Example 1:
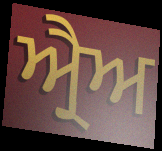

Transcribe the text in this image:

ਅ੍ਰੈਅ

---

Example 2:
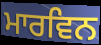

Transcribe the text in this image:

ਮਾਰਵਿਨ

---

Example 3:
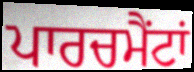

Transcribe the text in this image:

ਪਾਰਚਮੈਂਟਾਂ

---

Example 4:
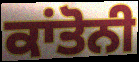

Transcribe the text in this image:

ਕਾਂਤੋਨੀ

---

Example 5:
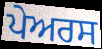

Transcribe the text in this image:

ਪੇਅਰਸ